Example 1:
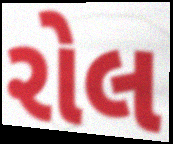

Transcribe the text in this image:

રોલ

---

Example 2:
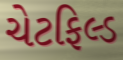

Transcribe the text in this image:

ચેટફિલ્ડ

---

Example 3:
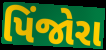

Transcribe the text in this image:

પિંજોરા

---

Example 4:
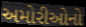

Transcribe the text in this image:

અમોરીઓનો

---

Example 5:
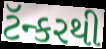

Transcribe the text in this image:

ટૅન્કરથી